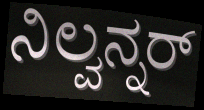
ನಿಲ್ವನ್ನರ್